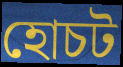
হোচট